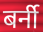
बर्नी